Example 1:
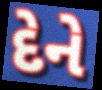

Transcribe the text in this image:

દેને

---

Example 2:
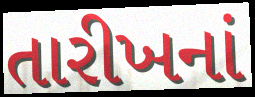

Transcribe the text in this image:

તારીખનાં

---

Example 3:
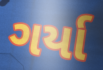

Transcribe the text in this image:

ગર્યા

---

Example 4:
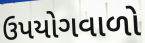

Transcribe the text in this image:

ઉપયોગવાળો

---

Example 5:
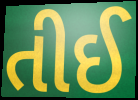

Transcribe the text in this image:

તીઈ